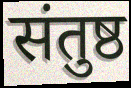
संतुष्ठ